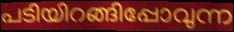
പടിയിറങ്ങിപ്പോവുന്ന